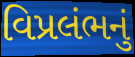
વિપ્રલંભનું